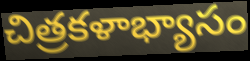
చిత్రకళాభ్యాసం